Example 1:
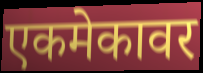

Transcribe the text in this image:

एकमेकावर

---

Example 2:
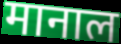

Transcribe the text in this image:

मानाल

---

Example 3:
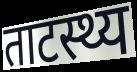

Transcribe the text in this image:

ताटस्थ्य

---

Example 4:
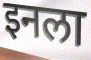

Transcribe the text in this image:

इनला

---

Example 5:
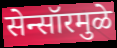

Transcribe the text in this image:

सेन्सॉरमुळे